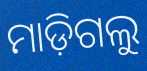
ମାଡ଼ିଗଲୁ